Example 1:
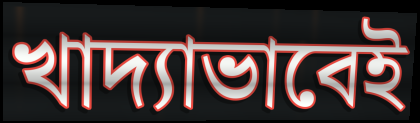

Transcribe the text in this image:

খাদ্যাভাবেই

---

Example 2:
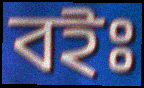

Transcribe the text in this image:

বইঃ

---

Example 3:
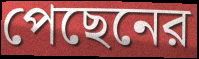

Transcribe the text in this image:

পেছেনের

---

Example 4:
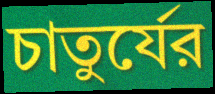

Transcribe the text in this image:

চাতুর্যের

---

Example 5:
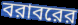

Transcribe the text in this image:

বরাবরের